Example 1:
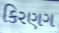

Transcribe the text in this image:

કિરણગ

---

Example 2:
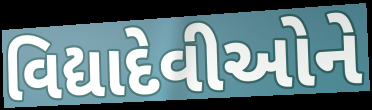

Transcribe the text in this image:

વિદ્યાદેવીઓને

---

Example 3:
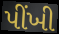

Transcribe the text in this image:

પીંખી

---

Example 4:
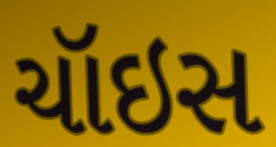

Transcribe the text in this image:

ચૉઇસ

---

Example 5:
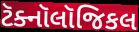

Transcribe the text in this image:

ટૅક્નૉલૉજિકલ